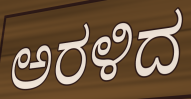
ಅರಳಿದ